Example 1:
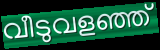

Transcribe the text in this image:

വീടുവളഞ്ഞ്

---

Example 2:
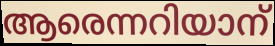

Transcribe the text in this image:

ആരെന്നറിയാന്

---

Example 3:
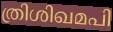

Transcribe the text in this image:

ത്രിശിഖമപി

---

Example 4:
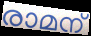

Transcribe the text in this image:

രാമന്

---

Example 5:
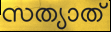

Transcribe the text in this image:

സത്യാത്